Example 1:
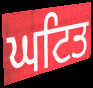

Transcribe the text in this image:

ਘਟਿਤ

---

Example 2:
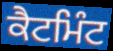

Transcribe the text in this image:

ਕੈਟਮਿੰਟ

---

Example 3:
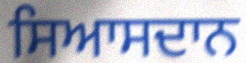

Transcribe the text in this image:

ਸਿਆਸਦਾਨ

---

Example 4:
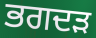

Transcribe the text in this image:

ਭਗਦੜ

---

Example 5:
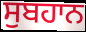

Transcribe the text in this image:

ਸੁਬਹਾਨ